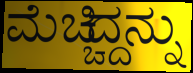
ಮೆಚ್ಚಿದ್ದನ್ನು